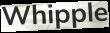
Whipple